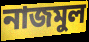
নাজমুল